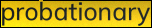
probationary